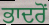
ਭਾਦਰੋਂ